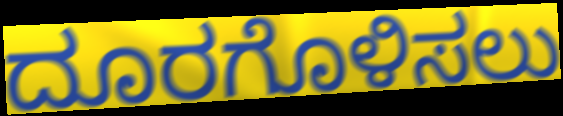
ದೂರಗೊಳಿಸಲು